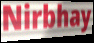
Nirbhay